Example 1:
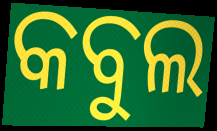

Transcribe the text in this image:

କବୁଲ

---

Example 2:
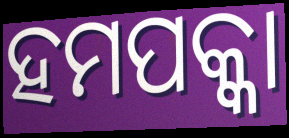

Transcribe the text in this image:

ହମପକ୍କା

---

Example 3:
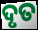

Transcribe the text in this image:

ଦୃତ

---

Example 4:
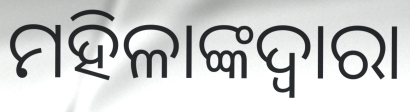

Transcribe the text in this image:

ମହିଳାଙ୍କଦ୍ୱାରା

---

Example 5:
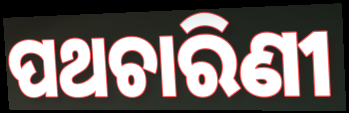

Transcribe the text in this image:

ପଥଚାରିଣୀ